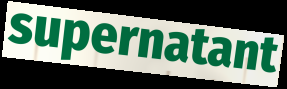
supernatant